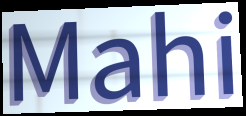
Mahi